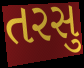
તરસુ